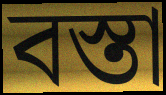
বস্তা